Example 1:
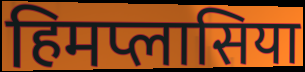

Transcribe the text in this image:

हिमप्लासिया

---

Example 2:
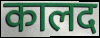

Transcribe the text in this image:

कालद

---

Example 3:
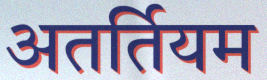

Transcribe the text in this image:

अतर्तियम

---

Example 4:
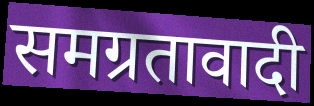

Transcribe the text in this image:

समग्रतावादी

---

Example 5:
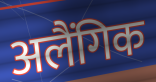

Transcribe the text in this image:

अलैंगिक